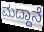
ಮದ್ದಾನೆ